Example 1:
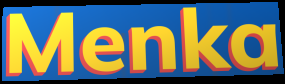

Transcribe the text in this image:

Menka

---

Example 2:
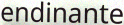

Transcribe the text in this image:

endinante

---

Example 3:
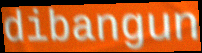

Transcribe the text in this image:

dibangun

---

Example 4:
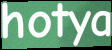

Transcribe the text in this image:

hotya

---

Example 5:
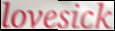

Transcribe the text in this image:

lovesick